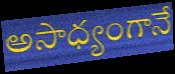
అసాధ్యంగానే